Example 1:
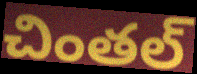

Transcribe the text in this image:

చింతల్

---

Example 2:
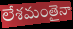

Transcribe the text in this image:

లేశమంతైనా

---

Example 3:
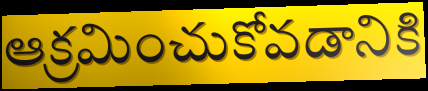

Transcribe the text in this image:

ఆక్రమించుకోవడానికి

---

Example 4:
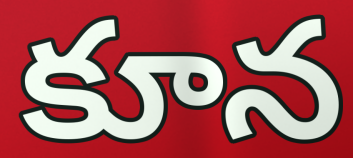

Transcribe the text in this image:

కూన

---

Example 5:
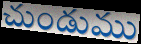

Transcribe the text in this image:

చుండుము